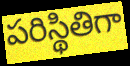
పరిస్థితిగా